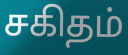
சகிதம்